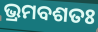
ଭ୍ରମବଶତଃ